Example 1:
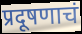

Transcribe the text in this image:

प्रदूषणाचं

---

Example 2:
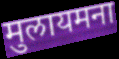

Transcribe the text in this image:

मुलायमना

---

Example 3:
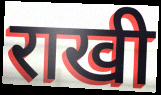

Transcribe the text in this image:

राखी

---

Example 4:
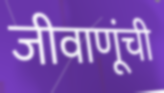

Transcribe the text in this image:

जीवाणूंची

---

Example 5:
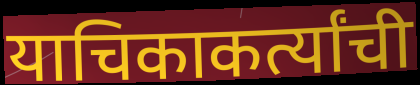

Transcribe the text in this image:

याचिकाकर्त्यांची